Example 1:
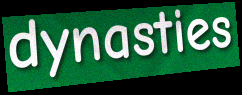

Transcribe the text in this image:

dynasties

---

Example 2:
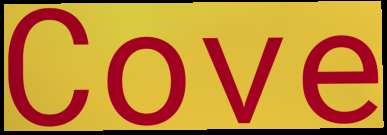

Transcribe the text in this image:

Cove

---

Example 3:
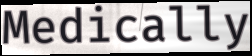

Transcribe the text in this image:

Medically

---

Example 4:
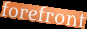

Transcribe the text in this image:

forefront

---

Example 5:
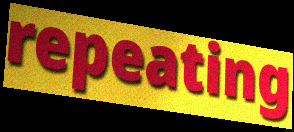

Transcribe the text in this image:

repeating